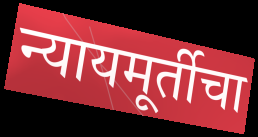
न्यायमूर्तीचा